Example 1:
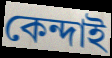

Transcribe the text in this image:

কেন্দাই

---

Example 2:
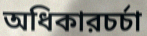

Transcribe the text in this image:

অধিকারচর্চা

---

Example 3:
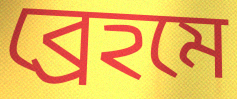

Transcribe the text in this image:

ব্রেহমে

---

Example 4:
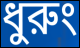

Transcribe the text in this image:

ধুরুং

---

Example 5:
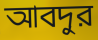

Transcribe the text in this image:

আবদুর